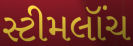
સ્ટીમલૉંચ